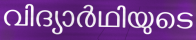
വിദ്യാർഥിയുടെ